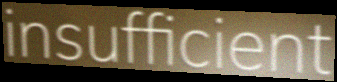
insufficient